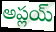
అప్లయ్